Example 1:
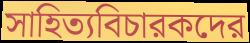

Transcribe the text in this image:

সাহিত্যবিচারকদের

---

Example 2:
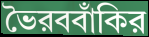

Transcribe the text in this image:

ভৈরববাঁকির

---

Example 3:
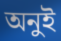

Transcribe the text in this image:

অনুই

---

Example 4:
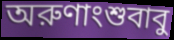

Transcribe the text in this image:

অরুণাংশুবাবু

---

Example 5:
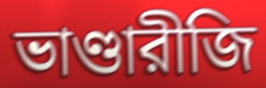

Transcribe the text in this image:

ভাণ্ডারীজি